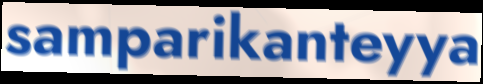
samparikanteyya